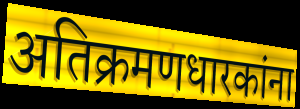
अतिक्रमणधारकांना